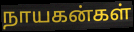
நாயகன்கள்